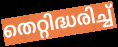
തെറ്റിദ്ധരിച്ച്